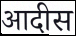
आदीस